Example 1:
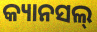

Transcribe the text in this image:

କ୍ୟାନସଲ୍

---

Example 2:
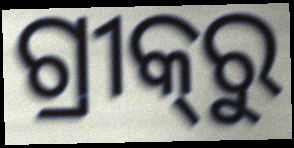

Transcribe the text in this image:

ଗ୍ରୀକ୍‌ରୁ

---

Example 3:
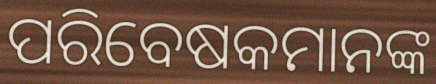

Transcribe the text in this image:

ପରିବେଷକମାନଙ୍କ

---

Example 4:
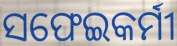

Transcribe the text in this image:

ସଫେଇକର୍ମୀ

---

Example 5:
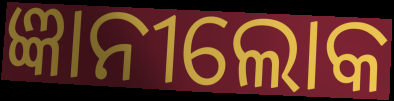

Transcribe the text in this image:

ଜ୍ଞାନୀଲୋକ